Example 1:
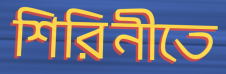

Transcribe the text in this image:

শিরিনীতে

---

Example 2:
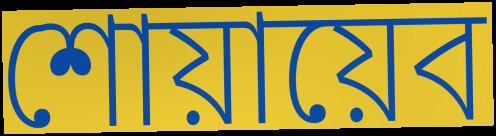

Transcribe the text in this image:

শোয়ায়েব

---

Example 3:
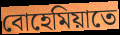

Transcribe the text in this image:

বোহেমিয়াতে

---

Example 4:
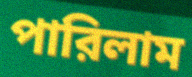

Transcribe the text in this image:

পারিলাম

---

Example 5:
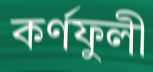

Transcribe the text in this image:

কর্ণফুলী